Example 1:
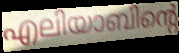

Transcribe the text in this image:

എലിയാബിന്റെ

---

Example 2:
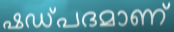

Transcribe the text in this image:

ഷഡ്പദമാണ്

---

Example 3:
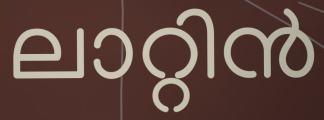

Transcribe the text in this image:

ലാറ്റിൻ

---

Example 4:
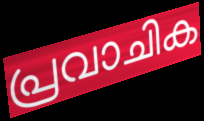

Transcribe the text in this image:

പ്രവാചിക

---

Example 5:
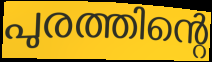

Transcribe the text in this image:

പുരത്തിന്റെ